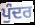
ਪੁੰਦਰ